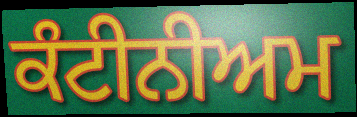
ਕੰਟੀਨੀਅਮ